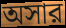
অসার